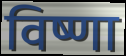
विष्णा